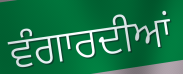
ਵੰਗਾਰਦੀਆਂ